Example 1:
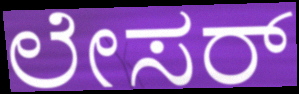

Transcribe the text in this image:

ಲೇಸರ್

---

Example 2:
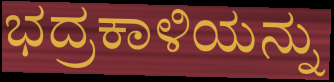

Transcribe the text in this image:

ಭದ್ರಕಾಳಿಯನ್ನು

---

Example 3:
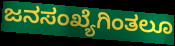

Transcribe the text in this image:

ಜನಸಂಖ್ಯೆಗಿಂತಲೂ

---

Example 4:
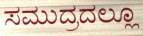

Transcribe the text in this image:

ಸಮುದ್ರದಲ್ಲೂ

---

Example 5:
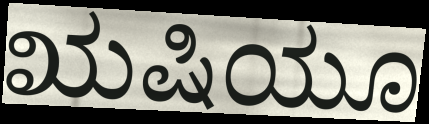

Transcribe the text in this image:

ಋಷಿಯೂ